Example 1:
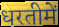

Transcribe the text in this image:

धरतीमें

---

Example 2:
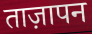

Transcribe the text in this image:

ताज़ापन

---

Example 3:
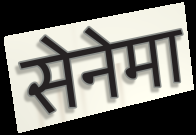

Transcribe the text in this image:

सेनेमा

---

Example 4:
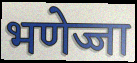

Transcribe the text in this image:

भणेज्जा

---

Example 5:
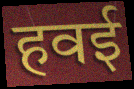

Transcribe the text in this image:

हवई